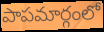
పాపమార్గంలో